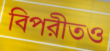
বিপরীতও